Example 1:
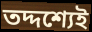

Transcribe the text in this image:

তদ্দশ্যেই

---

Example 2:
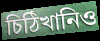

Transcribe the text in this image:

চিঠিখানিও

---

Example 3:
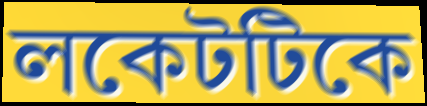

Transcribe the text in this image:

লকেটটিকে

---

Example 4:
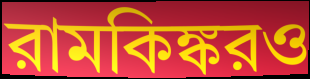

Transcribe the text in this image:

রামকিঙ্করও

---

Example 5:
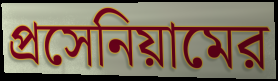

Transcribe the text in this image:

প্রসেনিয়ামের